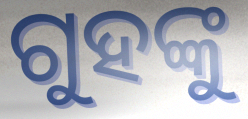
ଗୁହଙ୍କୁ